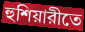
হুশিয়ারীতে